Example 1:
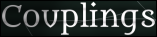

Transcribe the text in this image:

Couplings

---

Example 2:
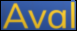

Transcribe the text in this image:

Aval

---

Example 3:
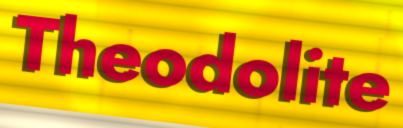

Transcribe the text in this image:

Theodolite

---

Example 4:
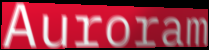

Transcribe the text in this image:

Auroram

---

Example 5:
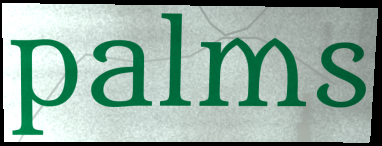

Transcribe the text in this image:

palms